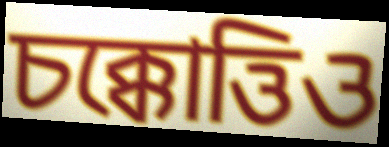
চক্কোত্তিও